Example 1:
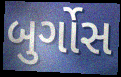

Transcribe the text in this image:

બુર્ગોસ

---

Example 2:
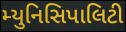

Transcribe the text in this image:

મ્યુનિસિપાલિટી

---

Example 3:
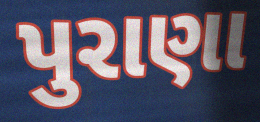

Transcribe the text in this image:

પુરાણા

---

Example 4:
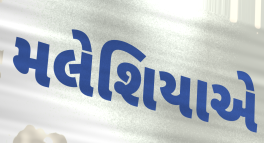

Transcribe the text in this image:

મલેશિયાએ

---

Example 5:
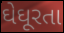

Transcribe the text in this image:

ઘેઘૂરતા